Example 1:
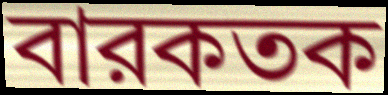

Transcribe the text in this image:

বারকতক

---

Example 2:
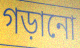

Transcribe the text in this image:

গড়ানো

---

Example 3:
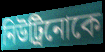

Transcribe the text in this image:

নিউট্রিনোকে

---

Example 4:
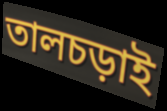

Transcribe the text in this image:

তালচড়াই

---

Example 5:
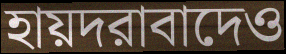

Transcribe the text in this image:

হায়দরাবাদেও